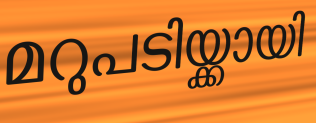
മറുപടിയ്ക്കായി